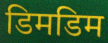
डिमडिम